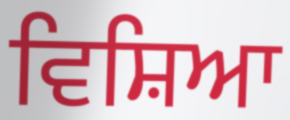
ਵਿਸ਼ਿਆ